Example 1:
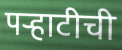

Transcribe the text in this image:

पऱ्हाटीची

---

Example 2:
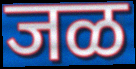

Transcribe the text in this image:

जळ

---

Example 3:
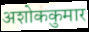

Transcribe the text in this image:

अशोककुमार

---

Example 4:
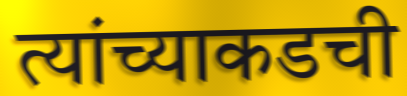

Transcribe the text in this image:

त्यांच्याकडची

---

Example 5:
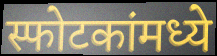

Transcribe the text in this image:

स्फोटकांमध्ये